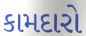
કામદારો